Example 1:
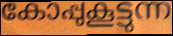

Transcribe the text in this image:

കോപ്പുകൂട്ടുന്ന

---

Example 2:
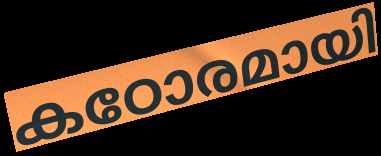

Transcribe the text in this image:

കഠോരമായി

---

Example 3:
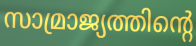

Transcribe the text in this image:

സാമ്രാജ്യത്തിന്റെ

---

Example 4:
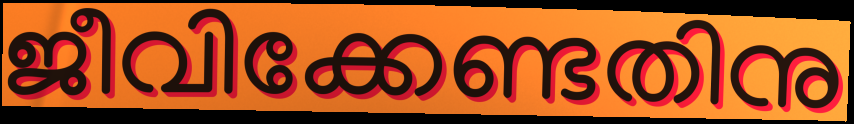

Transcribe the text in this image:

ജീവിക്കേണ്ടതിനു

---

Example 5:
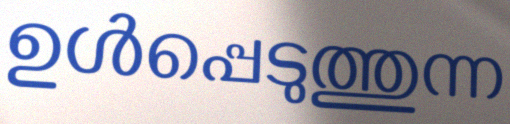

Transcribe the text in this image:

ഉൾപ്പെടുത്തുന്ന